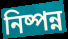
নিষ্পন্ন